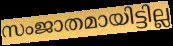
സംജാതമായിട്ടില്ല